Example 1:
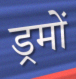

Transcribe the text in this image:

ड्रमों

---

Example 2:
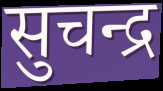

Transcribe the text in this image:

सुचन्द्र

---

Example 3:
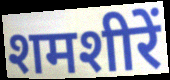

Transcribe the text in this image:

शमशीरें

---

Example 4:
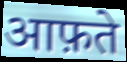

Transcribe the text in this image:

आफ़ते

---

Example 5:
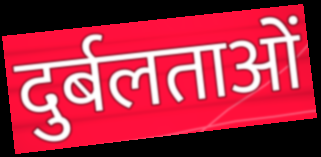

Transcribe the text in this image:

दुर्बलताओं